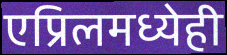
एप्रिलमध्येही